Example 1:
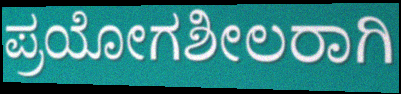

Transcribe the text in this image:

ಪ್ರಯೋಗಶೀಲರಾಗಿ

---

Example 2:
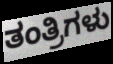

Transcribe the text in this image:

ತಂತ್ರಿಗಳು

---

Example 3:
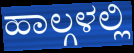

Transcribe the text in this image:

ಹಾಲ್ಗಳಲ್ಲಿ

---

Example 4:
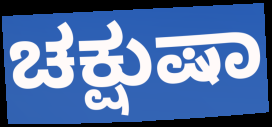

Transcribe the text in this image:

ಚಕ್ಷುಷಾ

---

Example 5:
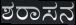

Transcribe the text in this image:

ಶರಾಸನ